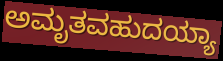
ಅಮೃತವಹುದಯ್ಯಾ